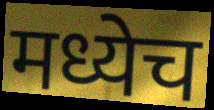
मध्येच